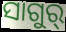
ସାଗୁର୍